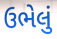
ઉભેલું